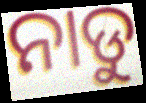
ନାଡୁ